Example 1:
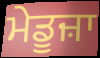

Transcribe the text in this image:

ਮੇਡੂਜ਼ਾ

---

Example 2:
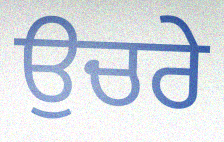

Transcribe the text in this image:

ਉਚਰੇ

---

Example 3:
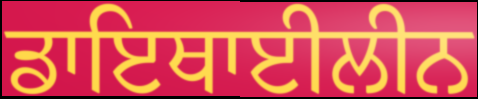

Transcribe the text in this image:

ਡਾਇਥਾਈਲੀਨ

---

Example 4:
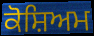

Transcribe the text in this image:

ਕੋਸ਼ਿਅਮ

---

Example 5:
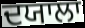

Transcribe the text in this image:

ਦਯਾਲਾ